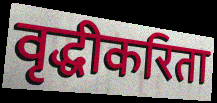
वृद्धीकरिता